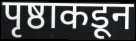
पृष्ठाकडून